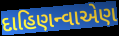
દાહિણન્વાએણ